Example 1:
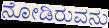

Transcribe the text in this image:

ನೋಡಿರುವನು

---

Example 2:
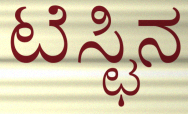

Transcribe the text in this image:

ಟೆಸ್ಟಿನ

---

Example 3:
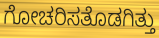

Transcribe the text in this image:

ಗೋಚರಿಸತೊಡಗಿತ್ತು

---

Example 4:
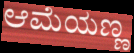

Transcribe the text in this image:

ಆಮೆಯಣ್ಣ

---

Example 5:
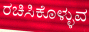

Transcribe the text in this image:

ರಚಿಸಿಕೊಳ್ಳುವ